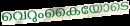
വെറുംകൈയോടെ